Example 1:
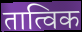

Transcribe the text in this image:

तात्विक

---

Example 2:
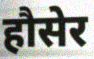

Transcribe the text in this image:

हौसेर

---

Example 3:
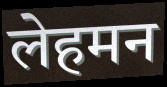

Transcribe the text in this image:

लेहमन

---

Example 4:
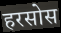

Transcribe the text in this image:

हरसोस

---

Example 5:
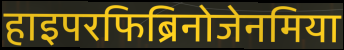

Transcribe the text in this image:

हाइपरफिब्रिनोजेनमिया